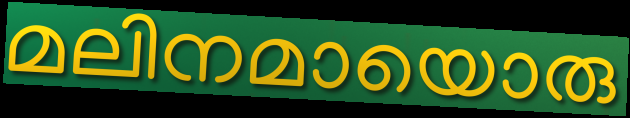
മലിനമായൊരു